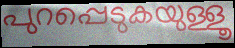
പുറപ്പെടുകയുള്ളൂ